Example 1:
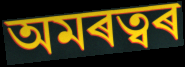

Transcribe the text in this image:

অমৰত্বৰ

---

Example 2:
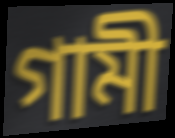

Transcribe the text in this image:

গামী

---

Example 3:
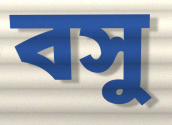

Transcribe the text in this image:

বসু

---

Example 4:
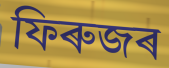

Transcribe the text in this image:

ফিৰুজৰ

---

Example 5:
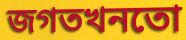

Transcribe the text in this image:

জগতখনতো